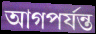
আগপর্যন্ত